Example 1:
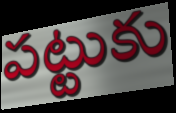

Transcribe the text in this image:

పట్టుకు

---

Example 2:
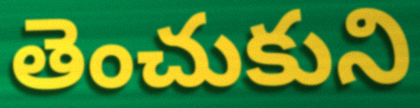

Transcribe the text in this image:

తెంచుకుని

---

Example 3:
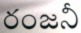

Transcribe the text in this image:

రంజనీ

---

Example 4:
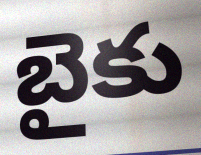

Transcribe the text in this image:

బైకు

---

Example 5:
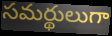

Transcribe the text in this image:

సమర్థులుగా